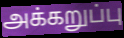
அக்கறுப்பு